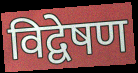
विद्वेषण